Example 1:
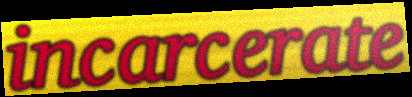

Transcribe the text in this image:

incarcerate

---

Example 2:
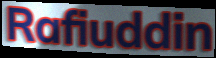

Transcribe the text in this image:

Rafiuddin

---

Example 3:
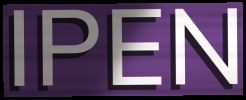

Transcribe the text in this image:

IPEN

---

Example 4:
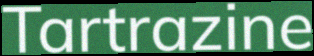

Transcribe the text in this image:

Tartrazine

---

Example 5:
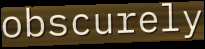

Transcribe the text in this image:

obscurely